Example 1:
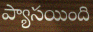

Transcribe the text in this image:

ప్యాసయింది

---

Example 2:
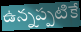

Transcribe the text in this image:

ఉన్నప్పటికే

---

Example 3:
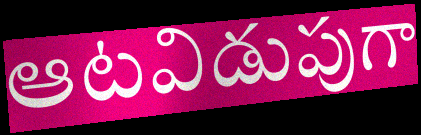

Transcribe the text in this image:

ఆటవిడుపుగా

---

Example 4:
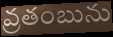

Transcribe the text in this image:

వ్రతంబును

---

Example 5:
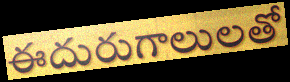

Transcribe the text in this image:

ఈదురుగాలులతో